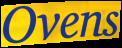
Ovens